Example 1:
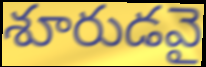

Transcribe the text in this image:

శూరుడవై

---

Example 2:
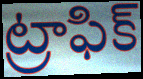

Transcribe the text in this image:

ట్రాఫిక్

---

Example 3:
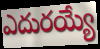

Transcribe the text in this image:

ఎదురయ్యే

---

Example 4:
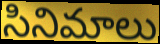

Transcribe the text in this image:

సినిమాలు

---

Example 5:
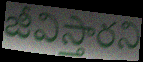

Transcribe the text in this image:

జీవిస్తారని